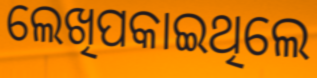
ଲେଖିପକାଇଥିଲେ